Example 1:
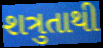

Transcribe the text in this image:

શત્રુતાથી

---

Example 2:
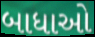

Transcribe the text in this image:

બાધાઓ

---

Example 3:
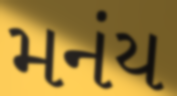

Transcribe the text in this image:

મનંય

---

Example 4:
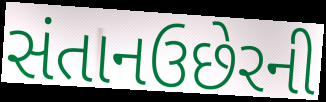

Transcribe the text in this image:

સંતાનઉછેરની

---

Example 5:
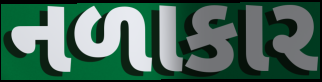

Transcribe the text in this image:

નળાકાર